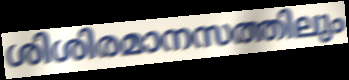
ശിശിരമാനസത്തിലും